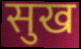
सुख